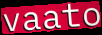
vaato